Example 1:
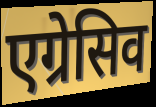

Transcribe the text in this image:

एग्रेसिव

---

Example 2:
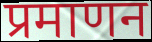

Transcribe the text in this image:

प्रमाणन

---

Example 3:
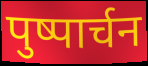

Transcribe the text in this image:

पुष्पार्चन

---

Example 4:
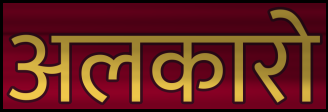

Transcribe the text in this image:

अलकारो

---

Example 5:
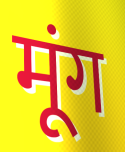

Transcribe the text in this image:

मूंग